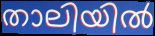
താലിയിൽ